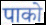
पाको